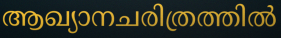
ആഖ്യാനചരിത്രത്തിൽ